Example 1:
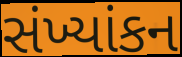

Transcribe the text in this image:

સંખ્યાંકન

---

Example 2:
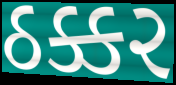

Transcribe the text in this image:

ઠક્કર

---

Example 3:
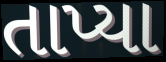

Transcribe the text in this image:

તાપ્યા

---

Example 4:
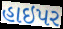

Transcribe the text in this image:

હાઇપર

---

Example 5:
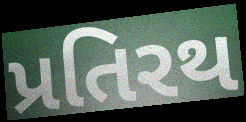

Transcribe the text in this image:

પ્રતિરથ